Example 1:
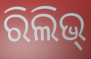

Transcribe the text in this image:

ରିଲିଭ୍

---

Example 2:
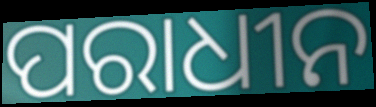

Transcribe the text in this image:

ପରାଧୀନ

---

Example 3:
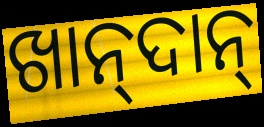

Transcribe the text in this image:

ଖାନ୍‍ଦାନ୍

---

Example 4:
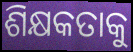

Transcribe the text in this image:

ଶିକ୍ଷକତାକୁ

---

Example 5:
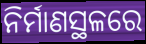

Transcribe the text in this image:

ନିର୍ମାଣସ୍ଥଳରେ